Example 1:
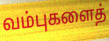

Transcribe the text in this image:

வம்புகளைத்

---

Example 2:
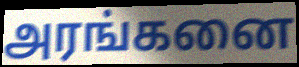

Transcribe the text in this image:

அரங்கனை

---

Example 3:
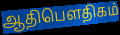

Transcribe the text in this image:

ஆதிபௌதிகம்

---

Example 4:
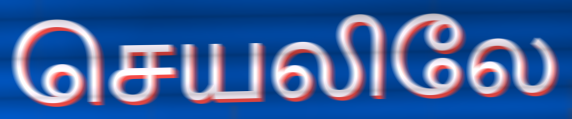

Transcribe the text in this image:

செயலிலே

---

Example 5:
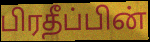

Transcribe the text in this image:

பிரதீப்பின்